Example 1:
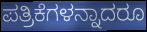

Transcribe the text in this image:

ಪತ್ರಿಕೆಗಳನ್ನಾದರೂ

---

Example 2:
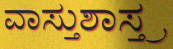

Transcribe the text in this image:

ವಾಸ್ತುಶಾಸ್ತ್ರ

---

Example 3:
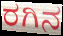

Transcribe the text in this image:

ರಗಿನ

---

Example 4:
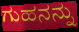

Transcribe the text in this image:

ಗುಹನನ್ನು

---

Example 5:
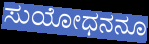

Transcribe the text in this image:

ಸುಯೋಧನನೂ